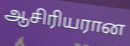
ஆசிரியரான